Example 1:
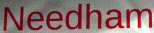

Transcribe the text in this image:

Needham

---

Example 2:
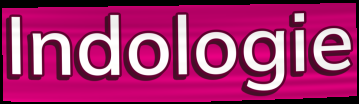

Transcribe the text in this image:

Indologie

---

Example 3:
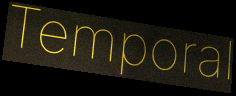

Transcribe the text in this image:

Temporal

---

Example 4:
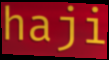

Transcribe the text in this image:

haji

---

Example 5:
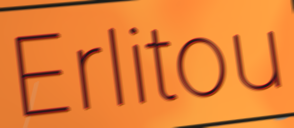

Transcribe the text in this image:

Erlitou